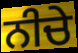
ਨੀਚੇ